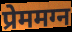
प्रेममग्न